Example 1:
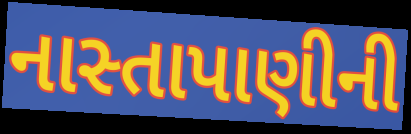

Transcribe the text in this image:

નાસ્તાપાણીની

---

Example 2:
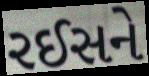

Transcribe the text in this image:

રઈસને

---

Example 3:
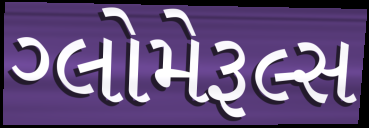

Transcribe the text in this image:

ગ્લોમેરૂલ્સ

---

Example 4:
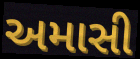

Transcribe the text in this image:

અમાસી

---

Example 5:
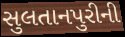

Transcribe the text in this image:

સુલતાનપુરીની